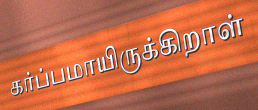
கர்ப்பமாயிருக்கிறாள்